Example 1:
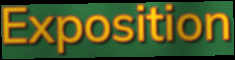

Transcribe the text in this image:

Exposition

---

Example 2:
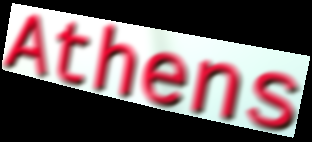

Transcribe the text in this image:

Athens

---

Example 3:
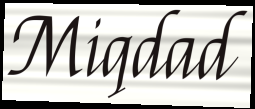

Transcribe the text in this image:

Miqdad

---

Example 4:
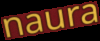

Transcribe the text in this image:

naura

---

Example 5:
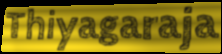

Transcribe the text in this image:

Thiyagaraja